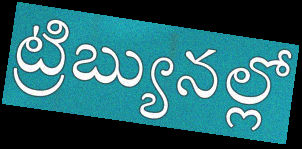
ట్రిబ్యునల్లో